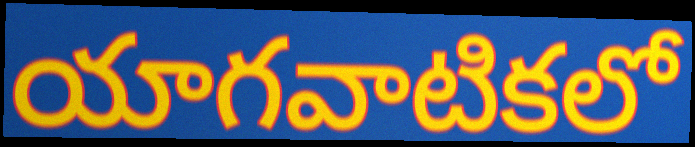
యాగవాటికలో